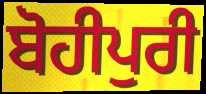
ਬੋਹੀਪੁਰੀ